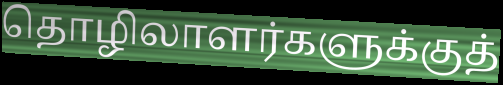
தொழிலாளர்களுக்குத்